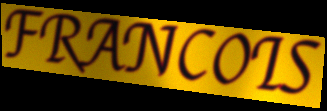
FRANCOIS